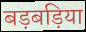
बड़बड़िया